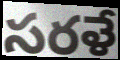
సరళే